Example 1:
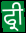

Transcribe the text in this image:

ਫ੍ਰੀ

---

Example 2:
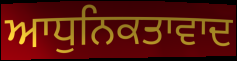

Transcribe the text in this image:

ਆਧੁਨਿਕਤਾਵਾਦ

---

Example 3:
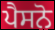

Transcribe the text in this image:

ਪੈਸਨੋ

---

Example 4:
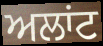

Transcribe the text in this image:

ਅਲਾਂਟ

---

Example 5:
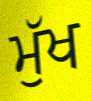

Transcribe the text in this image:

ਮੁੱਖ